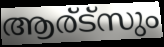
ആര്ട്സും